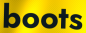
boots